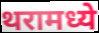
थरामध्ये